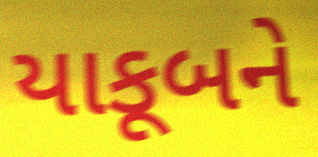
યાકૂબને